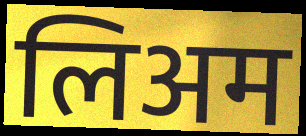
लिअम